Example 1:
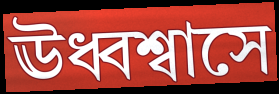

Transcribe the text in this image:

ঊধ্বশ্বাসে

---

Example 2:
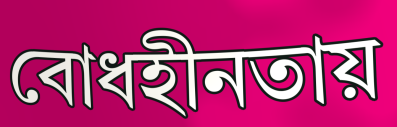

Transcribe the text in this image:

বোধহীনতায়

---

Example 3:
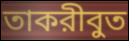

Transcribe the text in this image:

তাকরীবুত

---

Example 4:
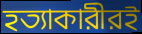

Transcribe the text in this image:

হত্যাকারীরই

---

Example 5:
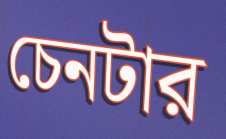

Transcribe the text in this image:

চেনটার